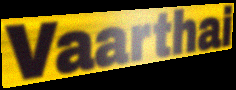
Vaarthai